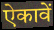
ऐकावें